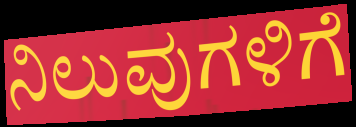
ನಿಲುವುಗಳಿಗೆ